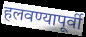
हलवण्यापूर्वी